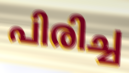
പിരിച്ച